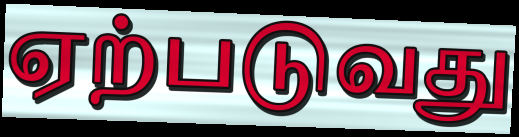
ஏற்படுவது